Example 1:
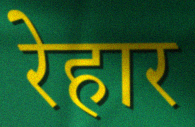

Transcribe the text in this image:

रेहार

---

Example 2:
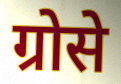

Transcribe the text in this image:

ग्रोसे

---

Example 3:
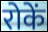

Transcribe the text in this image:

रोकें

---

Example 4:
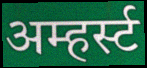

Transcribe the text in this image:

अम्हर्स्ट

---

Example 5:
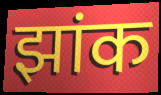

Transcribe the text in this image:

झांक